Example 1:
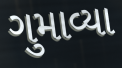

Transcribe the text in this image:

ગુમાવ્યા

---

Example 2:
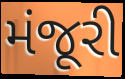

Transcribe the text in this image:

મંજૂરી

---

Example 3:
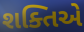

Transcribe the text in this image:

શક્તિએ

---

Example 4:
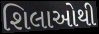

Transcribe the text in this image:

શિલાઓથી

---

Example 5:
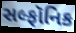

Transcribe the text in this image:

સલ્ફૉનિક